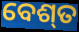
ବେଶ୍‍ତ